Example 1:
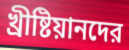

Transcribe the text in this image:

খ্রীষ্টিয়ানদের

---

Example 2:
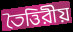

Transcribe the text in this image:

তৈত্তিরীয়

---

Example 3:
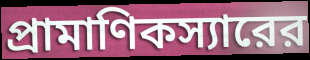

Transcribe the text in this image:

প্রামাণিকস্যারের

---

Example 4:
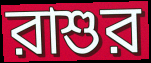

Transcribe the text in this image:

রাশুর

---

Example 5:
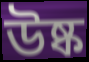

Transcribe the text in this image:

উষ্ক